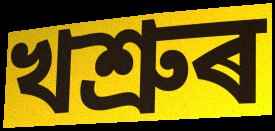
খশ্ৰুৰ